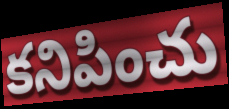
కనిపించు